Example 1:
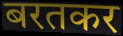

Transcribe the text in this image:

बरतकर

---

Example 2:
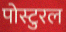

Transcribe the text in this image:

पोस्टुरल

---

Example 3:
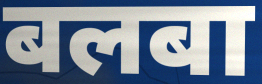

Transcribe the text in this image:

बलबा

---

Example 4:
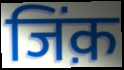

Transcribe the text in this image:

जिंक़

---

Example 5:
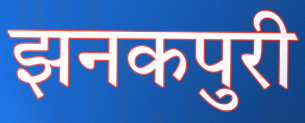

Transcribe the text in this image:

झनकपुरी